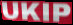
UKIP